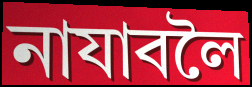
নাযাবলৈ